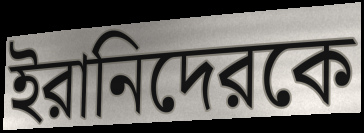
ইরানিদেরকে